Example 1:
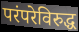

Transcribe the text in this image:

परंपरेविरुद्ध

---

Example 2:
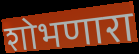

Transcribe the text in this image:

शोभणारा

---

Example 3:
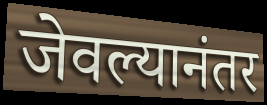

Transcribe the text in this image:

जेवल्यानंतर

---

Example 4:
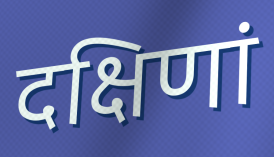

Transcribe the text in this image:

दक्षिणां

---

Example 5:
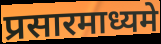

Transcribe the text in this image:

प्रसारमाध्यमे